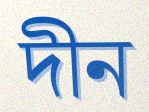
দীন